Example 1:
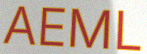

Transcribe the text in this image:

AEML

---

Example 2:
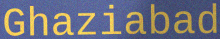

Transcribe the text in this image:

Ghaziabad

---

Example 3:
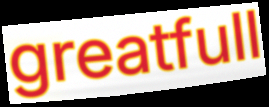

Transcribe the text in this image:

greatfull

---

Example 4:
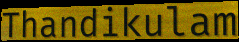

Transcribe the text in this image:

Thandikulam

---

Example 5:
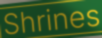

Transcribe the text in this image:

Shrines